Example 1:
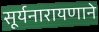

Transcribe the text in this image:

सूर्यनारायणाने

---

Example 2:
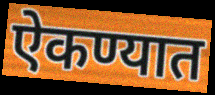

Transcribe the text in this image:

ऐकण्यात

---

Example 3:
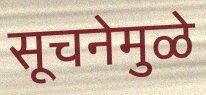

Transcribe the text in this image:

सूचनेमुळे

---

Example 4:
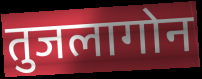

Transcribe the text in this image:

तुजलागोन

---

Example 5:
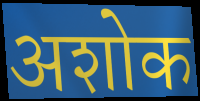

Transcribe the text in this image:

अशोक